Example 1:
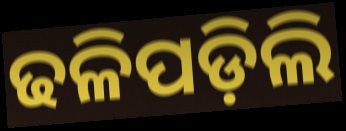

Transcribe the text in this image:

ଢଳିପଡ଼ିଲି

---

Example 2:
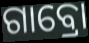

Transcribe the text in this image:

ଗାବ୍ରୋ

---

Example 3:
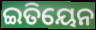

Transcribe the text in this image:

ଇତିୟେନ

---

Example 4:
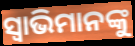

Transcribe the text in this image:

ସ୍ୱାଭିମାନଙ୍କୁ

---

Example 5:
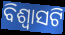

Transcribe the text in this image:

ବିଶ୍ୱାସଟି